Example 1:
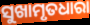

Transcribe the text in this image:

ସୁଖାମୃତଧାରା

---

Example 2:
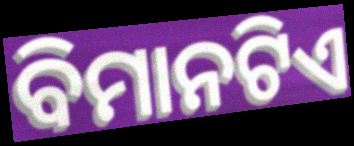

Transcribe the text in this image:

ବିମାନଟିଏ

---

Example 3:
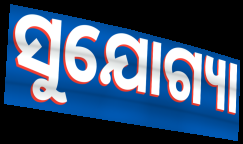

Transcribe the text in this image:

ସୁଯୋଗ୍ୟା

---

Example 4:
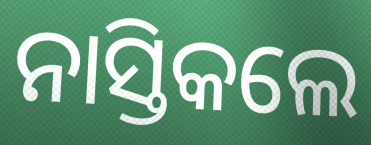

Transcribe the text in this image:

ନାସ୍ତିକଲେ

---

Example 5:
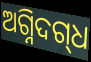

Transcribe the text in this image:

ଅଗ୍ନିଦଗ୍‌ଧ